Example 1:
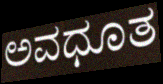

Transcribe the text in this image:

ಅವಧೂತ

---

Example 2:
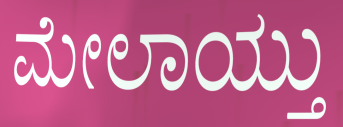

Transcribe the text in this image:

ಮೇಲಾಯ್ತು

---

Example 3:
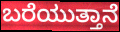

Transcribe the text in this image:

ಬರೆಯುತ್ತಾನೆ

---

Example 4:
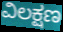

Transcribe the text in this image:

ವಿಲಕ್ಷಣ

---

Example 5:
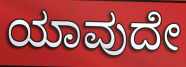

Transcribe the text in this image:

ಯಾವುದೇ